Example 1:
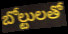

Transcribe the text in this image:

బోల్టులతో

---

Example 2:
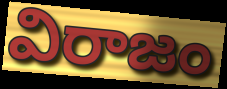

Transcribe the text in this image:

విరాజం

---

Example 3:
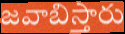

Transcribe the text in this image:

జవాబిస్తారు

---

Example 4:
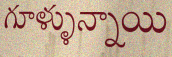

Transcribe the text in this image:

గూళ్ళున్నాయి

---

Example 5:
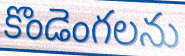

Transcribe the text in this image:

కొండెంగలను